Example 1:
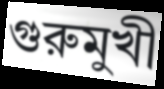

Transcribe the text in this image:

গুরুমুখী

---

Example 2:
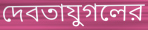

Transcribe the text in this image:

দেবতাযুগলের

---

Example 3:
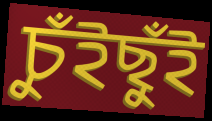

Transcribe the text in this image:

চুঁইছুঁই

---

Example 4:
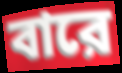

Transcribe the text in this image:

বারে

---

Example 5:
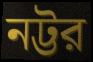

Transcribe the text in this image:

নট্টর